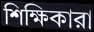
শিক্ষিকারা